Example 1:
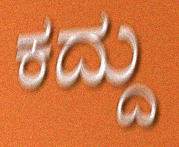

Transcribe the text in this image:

ಕದ್ದು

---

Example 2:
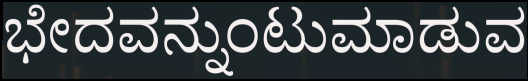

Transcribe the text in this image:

ಭೇದವನ್ನುಂಟುಮಾಡುವ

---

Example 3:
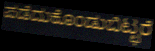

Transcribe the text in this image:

ಪಡೆದುಕೊಂಡುಬಿಟ್ಟರೆ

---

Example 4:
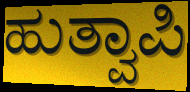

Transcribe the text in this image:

ಹುತ್ವಾಪಿ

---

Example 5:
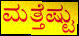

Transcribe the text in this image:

ಮತ್ತೆಷ್ಟು